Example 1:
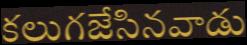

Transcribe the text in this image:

కలుగజేసినవాడు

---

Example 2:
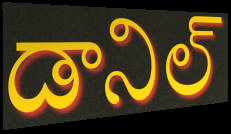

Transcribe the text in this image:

డానిల్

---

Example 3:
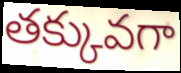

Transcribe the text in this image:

తక్కువగా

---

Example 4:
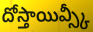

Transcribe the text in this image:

దోస్తాయివ్స్కీ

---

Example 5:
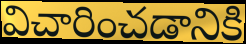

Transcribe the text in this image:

విచారించడానికి